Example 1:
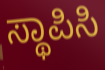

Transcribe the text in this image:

ಸ್ಥಾಪಿಸಿ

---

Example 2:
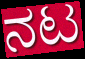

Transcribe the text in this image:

ನಟ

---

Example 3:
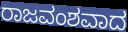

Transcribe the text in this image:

ರಾಜವಂಶವಾದ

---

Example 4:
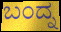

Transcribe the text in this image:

ಬಂದ್ನ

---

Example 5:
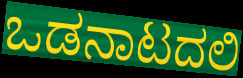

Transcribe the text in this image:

ಒಡನಾಟದಲಿ